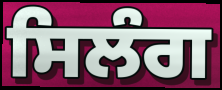
ਸਿਲੰਗ